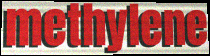
methylene